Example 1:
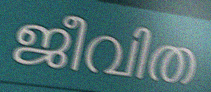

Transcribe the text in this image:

ജീവിത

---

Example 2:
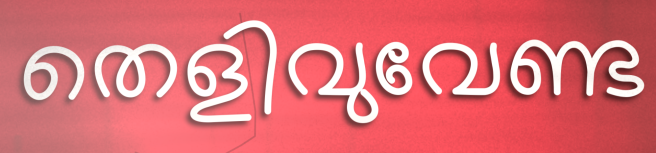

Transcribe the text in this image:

തെളിവുവേണ്ട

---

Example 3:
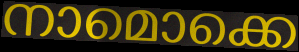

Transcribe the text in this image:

നാമൊക്കെ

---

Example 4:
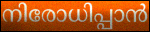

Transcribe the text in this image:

നിരോധിപ്പാൻ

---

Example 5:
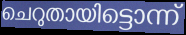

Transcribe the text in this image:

ചെറുതായിട്ടൊന്ന്